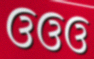
ઉઉઉ